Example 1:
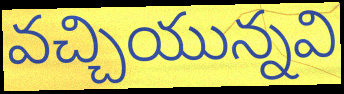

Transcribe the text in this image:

వచ్చియున్నవి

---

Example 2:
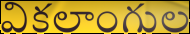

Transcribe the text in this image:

వికలాంగుల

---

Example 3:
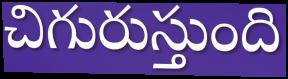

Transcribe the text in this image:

చిగురుస్తుంది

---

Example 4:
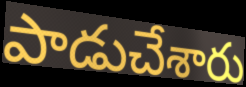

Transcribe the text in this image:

పాడుచేశారు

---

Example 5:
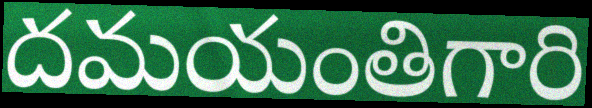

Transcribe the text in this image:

దమయంతిగారి